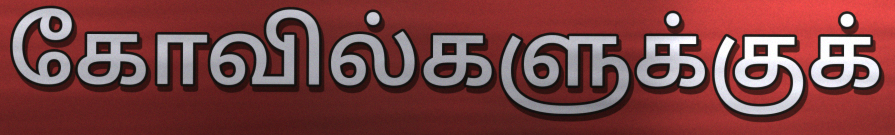
கோவில்களுக்குக்